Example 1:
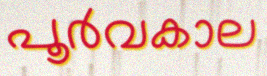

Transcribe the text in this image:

പൂർവകാല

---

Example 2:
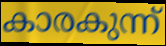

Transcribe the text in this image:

കാരകുന്ന്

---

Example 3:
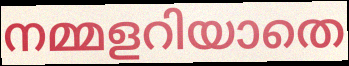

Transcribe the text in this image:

നമ്മളറിയാതെ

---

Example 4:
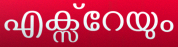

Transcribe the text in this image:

എക്സ്റേയും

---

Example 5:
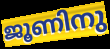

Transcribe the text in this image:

ജൂണിനു